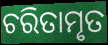
ଚରିତାମୃତ